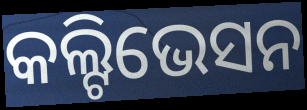
କଲ୍ଟିଭେସନ